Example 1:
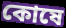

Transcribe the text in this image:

কোষে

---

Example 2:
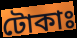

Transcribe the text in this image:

টোকাঃ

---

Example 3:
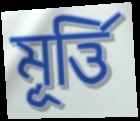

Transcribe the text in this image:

মূৰ্ত্তি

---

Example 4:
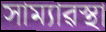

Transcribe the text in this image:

সাম্যাৱস্থা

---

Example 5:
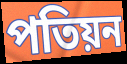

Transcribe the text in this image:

পতিয়ন